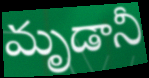
మృడానీ